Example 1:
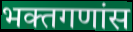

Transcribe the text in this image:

भक्तगणांस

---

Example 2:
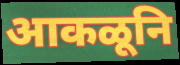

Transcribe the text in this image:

आकळूनि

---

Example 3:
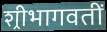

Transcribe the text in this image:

श्रीभागवतीं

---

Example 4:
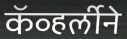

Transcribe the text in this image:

कॅव्हर्लीने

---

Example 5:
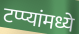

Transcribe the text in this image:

टप्प्यांमध्ये